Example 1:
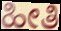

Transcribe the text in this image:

ಹೀತಿ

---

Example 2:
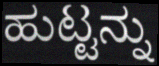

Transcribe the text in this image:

ಹುಟ್ಟನ್ನು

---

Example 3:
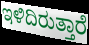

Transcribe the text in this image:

ಇಳಿದಿರುತ್ತಾರೆ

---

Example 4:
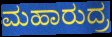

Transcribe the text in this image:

ಮಹಾರುದ್ರ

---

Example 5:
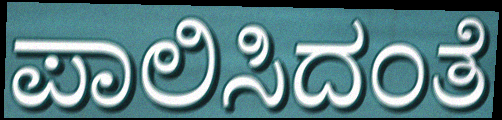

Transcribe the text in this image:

ಪಾಲಿಸಿದಂತೆ